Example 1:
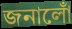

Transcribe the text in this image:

জনালোঁ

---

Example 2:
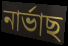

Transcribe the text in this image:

নাৰ্ভাছ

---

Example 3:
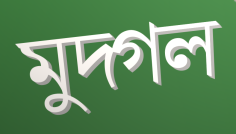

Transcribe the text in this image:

মুদ্গল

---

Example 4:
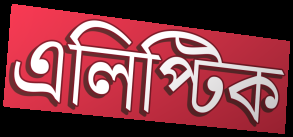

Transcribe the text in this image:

এলিপ্টিক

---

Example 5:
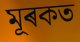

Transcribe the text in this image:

মূৰকত